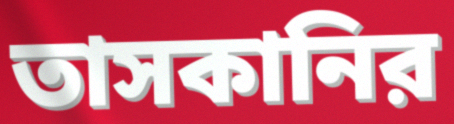
তাসকানির